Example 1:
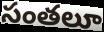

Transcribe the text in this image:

సంతలూ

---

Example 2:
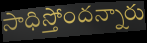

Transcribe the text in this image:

సాధిస్తోందన్నారు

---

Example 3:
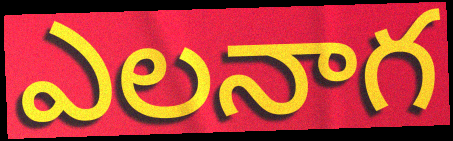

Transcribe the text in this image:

ఎలనాగ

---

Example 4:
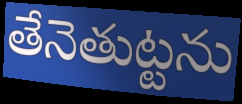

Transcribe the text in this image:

తేనెతుట్టను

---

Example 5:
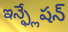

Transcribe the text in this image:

ఇన్ఫ్లేషన్